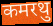
कमरथु